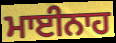
ਮਾਈਨਾਹ